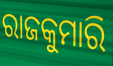
ରାଜକୁମାରି